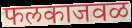
फलकाजवळ